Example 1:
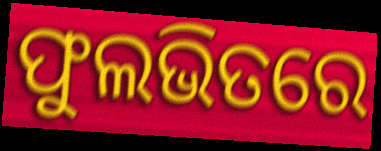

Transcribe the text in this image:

ଫୁଲଭିତରେ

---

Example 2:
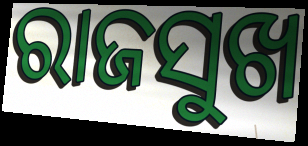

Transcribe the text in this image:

ରାଜସୁଖ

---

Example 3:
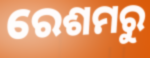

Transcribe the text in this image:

ରେଶମରୁ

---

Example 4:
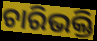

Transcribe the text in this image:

ଚାରିଭକ୍ତି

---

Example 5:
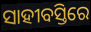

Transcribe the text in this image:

ସାହୀବସ୍ତିରେ